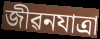
জীৱনযাত্ৰা